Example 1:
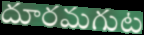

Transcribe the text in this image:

దూరమగుట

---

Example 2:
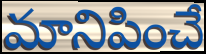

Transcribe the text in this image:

మానిపించే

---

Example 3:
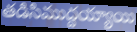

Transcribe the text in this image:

తడిసిముద్దయ్యాయి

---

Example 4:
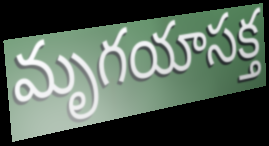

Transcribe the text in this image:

మృగయాసక్త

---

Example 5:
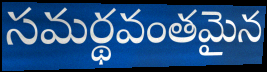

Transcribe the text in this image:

సమర్థవంతమైన